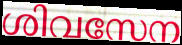
ശിവസേന